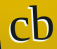
cb